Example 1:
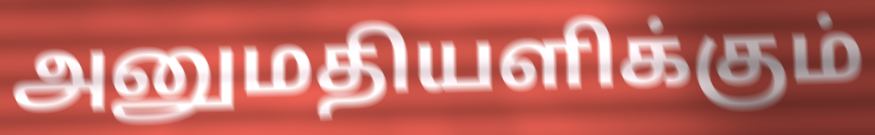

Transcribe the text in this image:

அனுமதியளிக்கும்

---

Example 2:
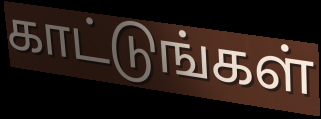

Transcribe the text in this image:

காட்டுங்கள்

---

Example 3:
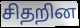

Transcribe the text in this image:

சிதறின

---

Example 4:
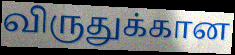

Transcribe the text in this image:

விருதுக்கான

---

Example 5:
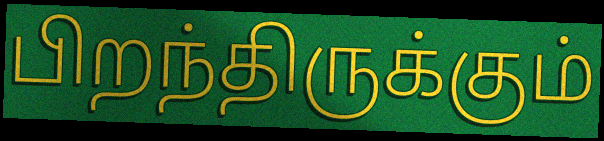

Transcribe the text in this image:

பிறந்திருக்கும்